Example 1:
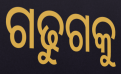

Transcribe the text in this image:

ଗଢୁଗକୁ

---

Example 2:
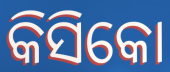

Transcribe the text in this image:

କିସିକୋ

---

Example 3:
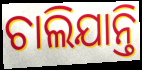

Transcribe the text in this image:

ଚାଲିଯାନ୍ତି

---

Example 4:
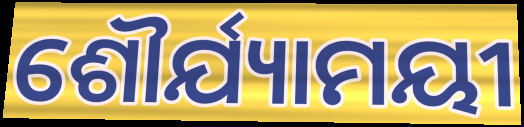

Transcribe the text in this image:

ଶୌର୍ଯ୍ୟାମୟୀ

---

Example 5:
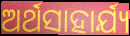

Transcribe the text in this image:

ଅର୍ଥସାହାର୍ଯ୍ୟ